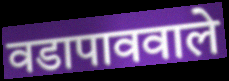
वडापाववाले